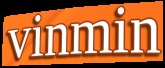
vinmin